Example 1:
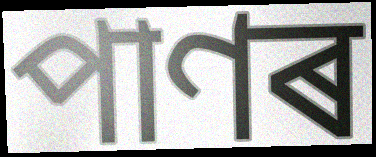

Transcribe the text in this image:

পাণৰ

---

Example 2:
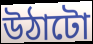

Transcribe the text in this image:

উঠাটো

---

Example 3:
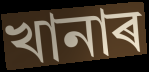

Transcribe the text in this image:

খানাৰ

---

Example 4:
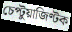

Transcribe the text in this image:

চেপ্টুয়াজিণ্টক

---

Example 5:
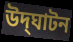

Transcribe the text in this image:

উদ্‌ঘাটন